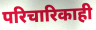
परिचारिकाही